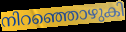
നിറഞ്ഞൊഴുകി